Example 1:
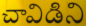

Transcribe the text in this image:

చావిడిని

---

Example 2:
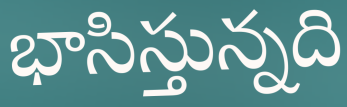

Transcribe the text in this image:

భాసిస్తున్నది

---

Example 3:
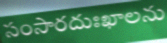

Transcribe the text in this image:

సంసారదుఃఖాలను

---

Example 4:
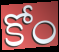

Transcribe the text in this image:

కోం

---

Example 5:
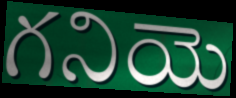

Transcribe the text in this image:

గనియె